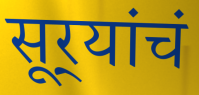
सूर्यांचं